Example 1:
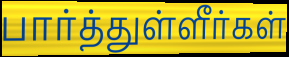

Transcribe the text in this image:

பார்த்துள்ளீர்கள்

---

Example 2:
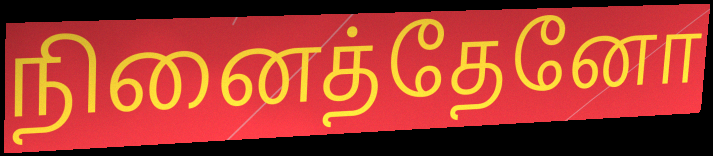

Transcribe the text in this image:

நினைத்தேனோ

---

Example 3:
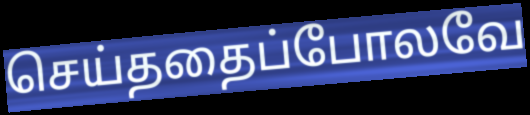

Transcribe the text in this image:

செய்ததைப்போலவே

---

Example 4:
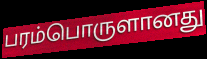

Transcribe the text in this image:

பரம்பொருளானது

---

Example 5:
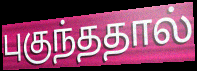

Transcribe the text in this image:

புகுந்ததால்